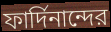
ফার্দিনান্দের